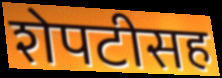
शेपटीसह